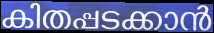
കിതപ്പടക്കാൻ